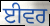
ਈਵਰ